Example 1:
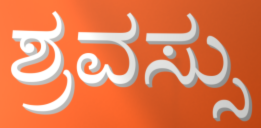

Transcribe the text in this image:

ಶ್ರವಸ್ಸು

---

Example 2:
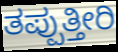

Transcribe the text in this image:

ತಪ್ಪುತ್ತೀರಿ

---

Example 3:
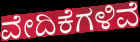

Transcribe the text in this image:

ವೇದಿಕೆಗಳಿವೆ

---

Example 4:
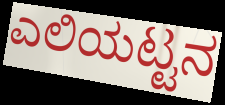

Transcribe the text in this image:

ಎಲಿಯಟ್ಟನ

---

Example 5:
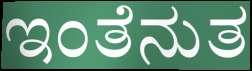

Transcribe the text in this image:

ಇಂತೆನುತ